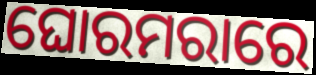
ଘୋରମରାରେ